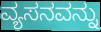
ವ್ಯಸನವನ್ನು